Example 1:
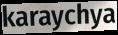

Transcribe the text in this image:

karaychya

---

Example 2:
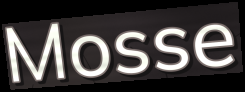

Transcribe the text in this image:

Mosse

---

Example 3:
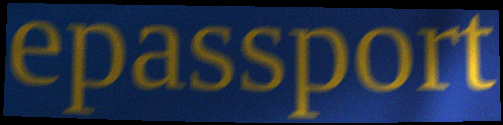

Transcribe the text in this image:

epassport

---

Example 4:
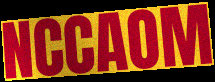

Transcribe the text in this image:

NCCAOM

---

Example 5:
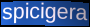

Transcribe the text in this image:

spicigera